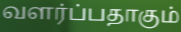
வளர்ப்பதாகும்